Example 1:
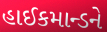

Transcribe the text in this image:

હાઈકમાન્ડને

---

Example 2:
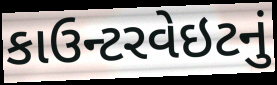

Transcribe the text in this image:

કાઉન્ટરવેઇટનું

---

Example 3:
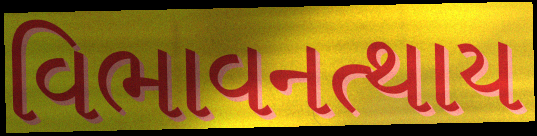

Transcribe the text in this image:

વિભાવનત્થાય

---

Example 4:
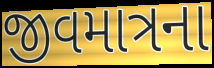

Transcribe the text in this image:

જીવમાત્રના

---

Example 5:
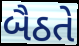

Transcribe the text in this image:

બૈઠતે